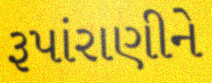
રૂપાંરાણીને